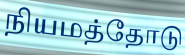
நியமத்தோடு